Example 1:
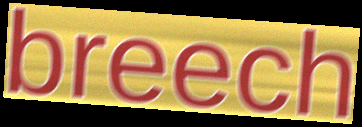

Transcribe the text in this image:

breech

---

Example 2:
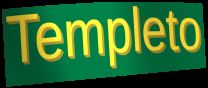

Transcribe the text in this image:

Templeto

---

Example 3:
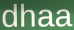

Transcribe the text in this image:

dhaa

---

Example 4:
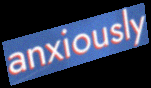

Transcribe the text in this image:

anxiously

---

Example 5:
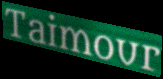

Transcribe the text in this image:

Taimour